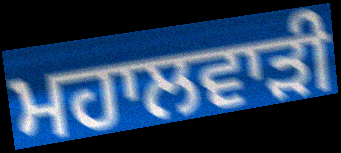
ਮਹਾਲਵਾੜੀ